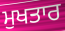
ਮੁਖਤਾਰ